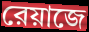
রেয়াজে